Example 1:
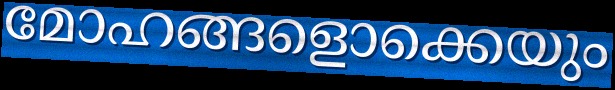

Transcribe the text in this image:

മോഹങ്ങളൊക്കെയും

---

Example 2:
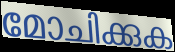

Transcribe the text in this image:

മോചിക്കുക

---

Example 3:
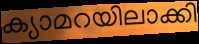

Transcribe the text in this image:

ക്യാമറയിലാക്കി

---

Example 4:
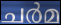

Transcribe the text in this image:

ചർമ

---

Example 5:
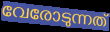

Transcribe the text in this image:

വേരോടുന്നത്